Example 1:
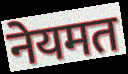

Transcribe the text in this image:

नेयमत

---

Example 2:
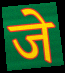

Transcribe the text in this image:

जे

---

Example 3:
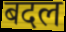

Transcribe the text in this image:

बदल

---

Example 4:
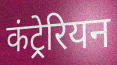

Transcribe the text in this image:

कंट्रेरियन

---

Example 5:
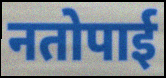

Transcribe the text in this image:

नतोपाई